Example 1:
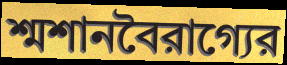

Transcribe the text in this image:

শ্মশানবৈরাগ্যের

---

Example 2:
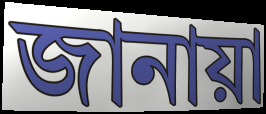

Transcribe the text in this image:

জানায়া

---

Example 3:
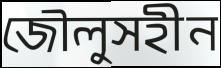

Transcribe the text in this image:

জৌলুসহীন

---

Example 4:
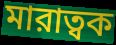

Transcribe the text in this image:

মারাত্বক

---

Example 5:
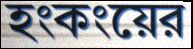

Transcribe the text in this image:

হংকংয়ের